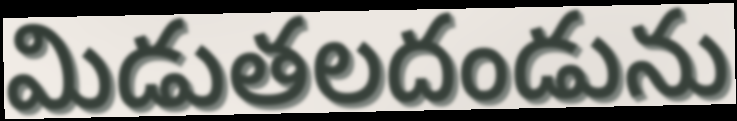
మిడుతలదండును